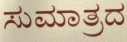
ಸುಮಾತ್ರದ